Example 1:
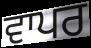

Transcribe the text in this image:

ਵਾਪਰ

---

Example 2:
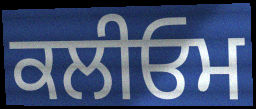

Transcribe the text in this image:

ਕਲੀਓਮ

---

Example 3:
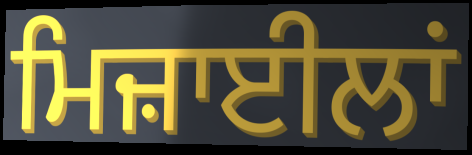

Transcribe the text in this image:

ਮਿਜ਼ਾਈਲਾਂ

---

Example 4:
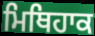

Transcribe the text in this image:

ਮਿਥਿਹਾਕ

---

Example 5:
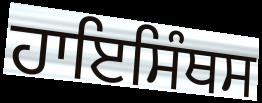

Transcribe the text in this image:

ਹਾਇਸਿੰਥਸ